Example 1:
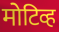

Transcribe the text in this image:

मोटिव्ह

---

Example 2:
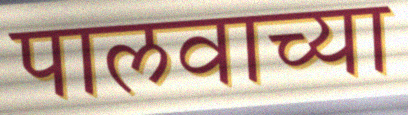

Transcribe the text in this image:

पालवाच्या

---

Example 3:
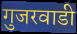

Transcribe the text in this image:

गुजरवाडी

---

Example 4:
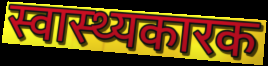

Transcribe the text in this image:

स्वास्थ्यकारक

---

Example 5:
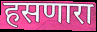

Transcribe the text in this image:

हसणारा